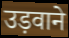
उड़वाने